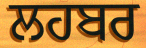
ਲਹਬਰ